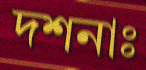
দশনাঃ